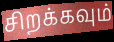
சிறக்கவும்